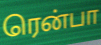
ரென்பா